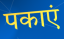
पकाएं